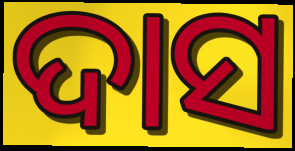
ଦାସ